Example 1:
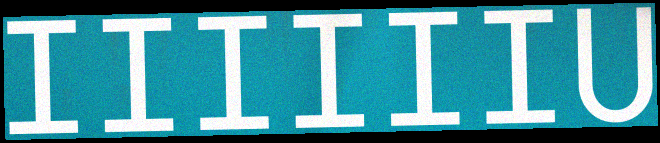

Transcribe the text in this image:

IIIIIIU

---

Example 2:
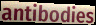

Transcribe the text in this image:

antibodies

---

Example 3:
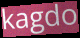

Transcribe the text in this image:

kagdo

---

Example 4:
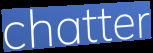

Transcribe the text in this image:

chatter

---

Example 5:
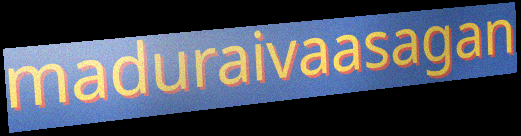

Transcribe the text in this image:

maduraivaasagan